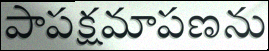
పాపక్షమాపణను